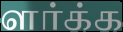
ளர்க்க